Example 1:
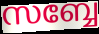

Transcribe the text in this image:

സബ്ബേ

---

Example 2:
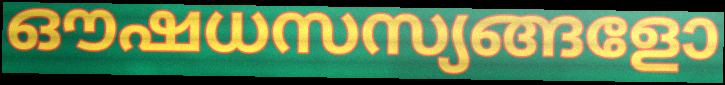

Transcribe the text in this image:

ഔഷധസസ്യങ്ങളോ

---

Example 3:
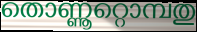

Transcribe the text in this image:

തൊണ്ണൂറ്റൊമ്പതു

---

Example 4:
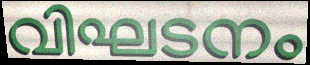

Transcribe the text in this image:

വിഘടനം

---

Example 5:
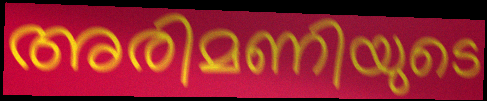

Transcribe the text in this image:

അരിമണിയുടെ